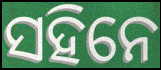
ସହିନେ